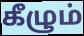
கீழும்